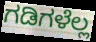
ಗಡಿಗಳೆಲ್ಲ